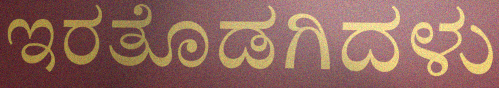
ಇರತೊಡಗಿದಳು